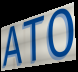
ATO